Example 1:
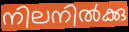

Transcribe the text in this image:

നിലനിൽക്കു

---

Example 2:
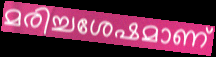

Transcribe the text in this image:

മരിച്ചശേഷമാണ്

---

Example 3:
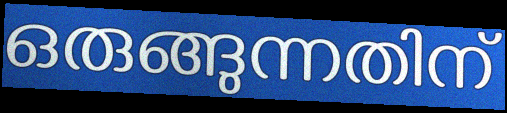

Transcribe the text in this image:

ഒരുങ്ങുന്നതിന്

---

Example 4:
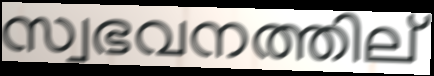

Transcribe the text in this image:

സ്വഭവനത്തില്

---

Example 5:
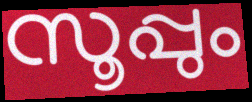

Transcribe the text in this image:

സൂപ്പും